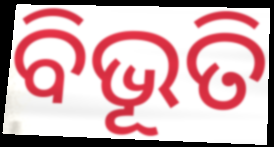
ବିଭୂତି